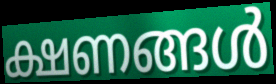
ക്ഷണങ്ങൾ